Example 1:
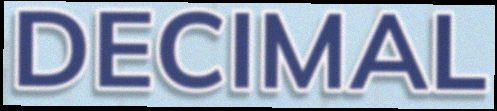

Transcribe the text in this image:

DECIMAL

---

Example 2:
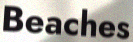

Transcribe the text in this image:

Beaches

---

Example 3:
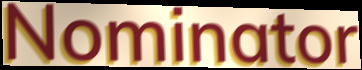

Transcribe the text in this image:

Nominator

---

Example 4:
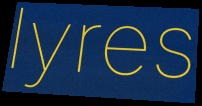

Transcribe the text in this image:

lyres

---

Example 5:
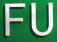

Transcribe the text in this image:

FU